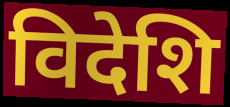
विदेशि